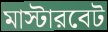
মাস্টারবেট